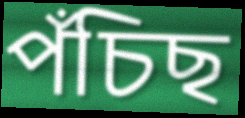
পঁচিছ